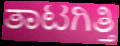
ತಾಟಗಿತ್ತಿ